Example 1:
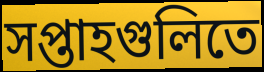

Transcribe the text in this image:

সপ্তাহগুলিতে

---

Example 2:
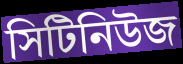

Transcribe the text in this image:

সিটিনিউজ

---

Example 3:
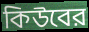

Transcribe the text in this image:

কিউবের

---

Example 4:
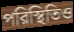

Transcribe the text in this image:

পরিস্থিতিও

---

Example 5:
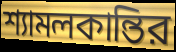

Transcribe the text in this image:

শ্যামলকান্তির